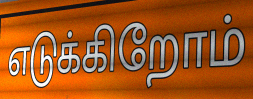
எடுக்கிறோம்